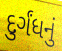
દુર્ગંધનું